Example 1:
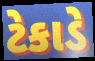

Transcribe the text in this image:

ટેકાડે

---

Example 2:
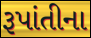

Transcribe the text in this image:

રૂપાંતીના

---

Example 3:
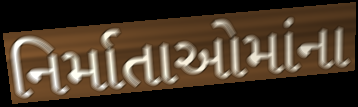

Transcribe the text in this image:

નિર્માતાઓમાંના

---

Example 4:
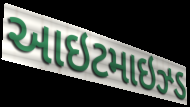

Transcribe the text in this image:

આઇટમાઇઝ્ડ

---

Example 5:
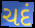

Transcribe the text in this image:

ચદં